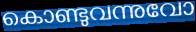
കൊണ്ടുവന്നുവോ